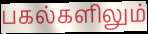
பகல்களிலும்